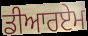
ਡੀਆਰਏਮ